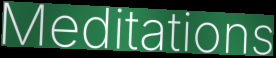
Meditations